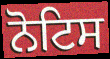
ਨੋਟਿਸ